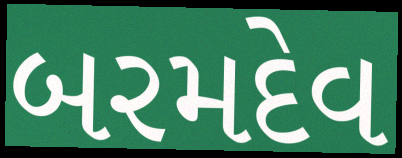
બરમદેવ